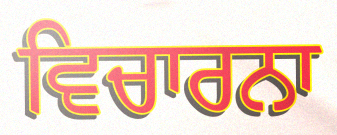
ਵਿਚਾਰਨਾ